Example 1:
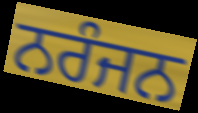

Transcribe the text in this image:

ਨਰੰਜਨ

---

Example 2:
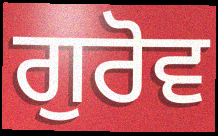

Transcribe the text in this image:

ਗੁਰੋਵ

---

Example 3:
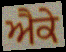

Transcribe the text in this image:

ਐਕੇ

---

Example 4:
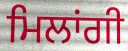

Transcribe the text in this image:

ਮਿਲਾਂਗੀ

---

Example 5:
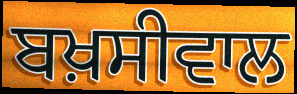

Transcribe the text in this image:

ਬਖ਼ਸੀਵਾਲ